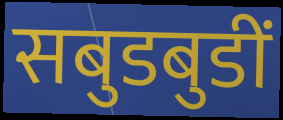
सबुडबुडीं